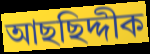
আছছিদ্দীক